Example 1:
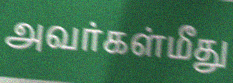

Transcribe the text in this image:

அவர்கள்மீது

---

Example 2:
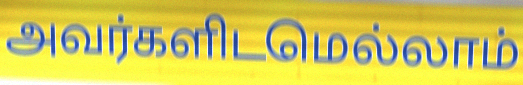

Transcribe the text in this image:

அவர்களிடமெல்லாம்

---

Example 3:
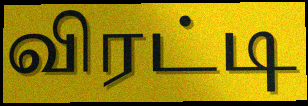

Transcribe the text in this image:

விரட்டி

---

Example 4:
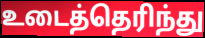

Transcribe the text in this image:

உடைத்தெரிந்து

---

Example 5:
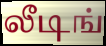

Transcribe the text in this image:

லீடிங்